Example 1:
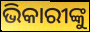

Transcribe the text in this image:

ଭିକାରୀଙ୍କୁ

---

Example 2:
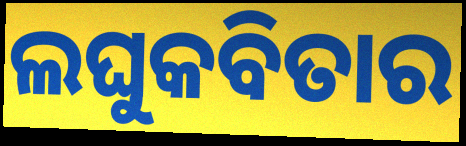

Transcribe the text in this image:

ଲଘୁକବିତାର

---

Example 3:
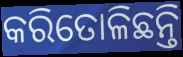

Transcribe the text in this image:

କରିତୋଳିଛନ୍ତି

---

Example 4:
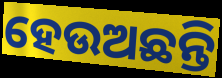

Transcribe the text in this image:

ହେଉଅଛନ୍ତି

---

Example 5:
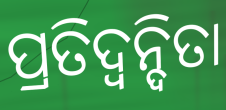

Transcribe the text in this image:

ପ୍ରତିଦ୍ୱନ୍ଦିତା